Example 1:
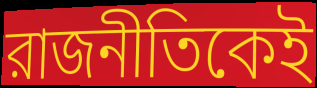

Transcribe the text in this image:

রাজনীতিকেই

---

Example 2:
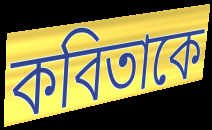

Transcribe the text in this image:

কবিতাকে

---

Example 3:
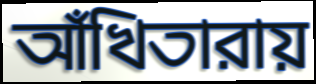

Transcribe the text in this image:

আঁখিতারায়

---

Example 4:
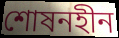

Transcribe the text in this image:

শোষনহীন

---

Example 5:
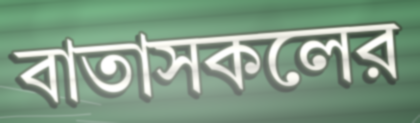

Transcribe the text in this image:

বাতাসকলের